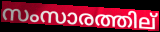
സംസാരത്തില്